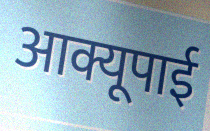
आक्यूपाई